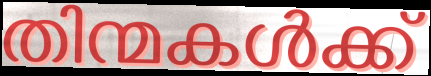
തിന്മകൾക്ക്